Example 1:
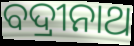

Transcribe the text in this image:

ବଦ୍ରୀନାଥ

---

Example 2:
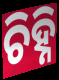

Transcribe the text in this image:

ଚିହ୍ନି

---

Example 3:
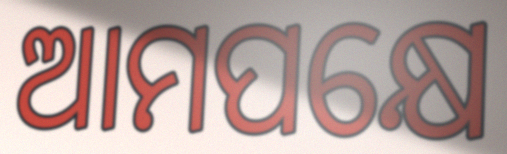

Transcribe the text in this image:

ଆମପକ୍ଷେ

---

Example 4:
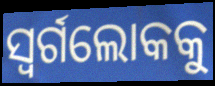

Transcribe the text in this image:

ସ୍ବର୍ଗଲୋକକୁ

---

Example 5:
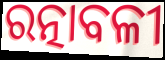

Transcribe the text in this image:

ରତ୍ନାବଳୀ